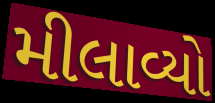
મીલાવ્યો